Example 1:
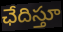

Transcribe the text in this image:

ఛేదిస్తూ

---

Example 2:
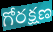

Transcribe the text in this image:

గోరక్షణ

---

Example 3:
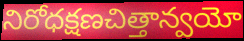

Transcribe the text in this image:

నిరోధక్షణచిత్తాన్వయో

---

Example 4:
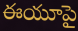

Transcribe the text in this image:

ఈయూపై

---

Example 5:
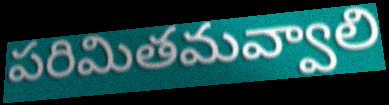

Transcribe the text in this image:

పరిమితమవ్వాలి